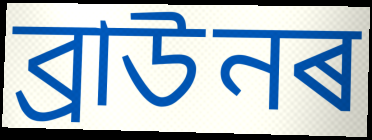
ব্ৰাউনৰ